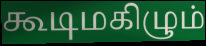
கூடிமகிழும்